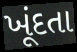
ખૂંદતા